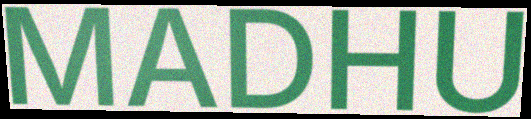
MADHU